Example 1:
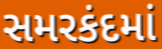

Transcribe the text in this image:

સમરકંદમાં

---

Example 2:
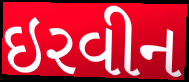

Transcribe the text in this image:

ઇરવીન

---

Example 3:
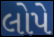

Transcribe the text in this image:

લોપે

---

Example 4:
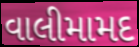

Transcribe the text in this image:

વાલીમામદ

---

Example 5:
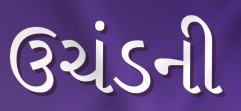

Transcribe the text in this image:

ઉચંડની